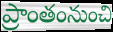
ప్రాంతంనుంచి